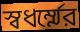
স্বধর্ম্মের